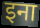
इना